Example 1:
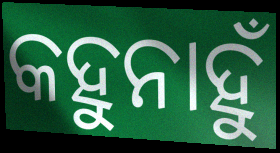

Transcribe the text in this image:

କହୁନାହୁଁ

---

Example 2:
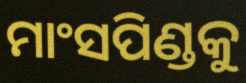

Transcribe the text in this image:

ମାଂସପିଣ୍ଡକୁ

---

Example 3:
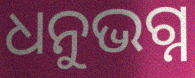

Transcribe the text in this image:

ଧନୁଭଗ୍ନ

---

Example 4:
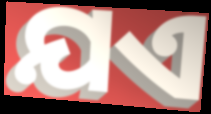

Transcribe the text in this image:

ଯଏ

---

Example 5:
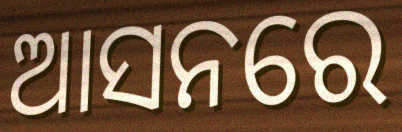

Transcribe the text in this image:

ଆସନରେ